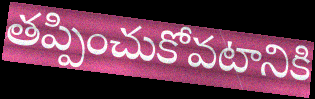
తప్పించుకోవటానికి